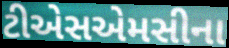
ટીએસએમસીના